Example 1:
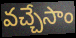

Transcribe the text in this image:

వచ్చేసాం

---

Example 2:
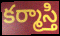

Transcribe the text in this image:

కర్మాస్తి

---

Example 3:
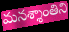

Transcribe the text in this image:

మనశ్శాంతిని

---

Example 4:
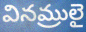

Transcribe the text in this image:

వినమ్రులై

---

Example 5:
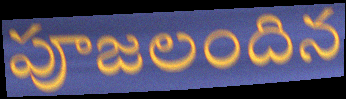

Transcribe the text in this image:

పూజలందిన